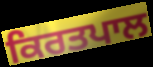
ਕਿਰਤਪਾਲ